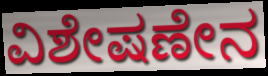
ವಿಶೇಷಣೇನ